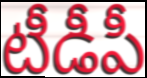
టీడీపీ